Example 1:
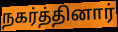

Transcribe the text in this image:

நகர்த்தினார்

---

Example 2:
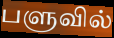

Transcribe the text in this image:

பளுவில்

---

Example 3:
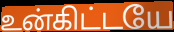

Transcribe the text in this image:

உன்கிட்டயே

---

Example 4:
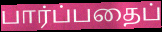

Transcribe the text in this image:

பார்ப்பதைப்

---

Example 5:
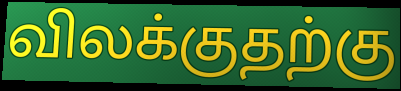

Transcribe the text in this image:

விலக்குதற்கு